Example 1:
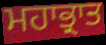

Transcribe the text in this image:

ਮਹਾਭ੍ਰਾਤ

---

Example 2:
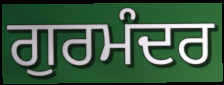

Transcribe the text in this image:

ਗੁਰਮੰਦਰ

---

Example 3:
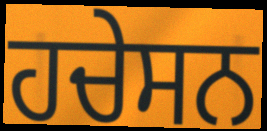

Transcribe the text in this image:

ਹਚੇਸਨ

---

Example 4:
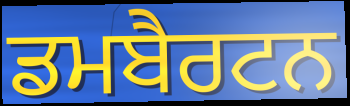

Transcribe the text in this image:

ਡਮਬੈਰਟਨ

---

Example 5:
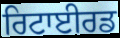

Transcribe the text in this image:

ਰਿਟਾਈਰਡ